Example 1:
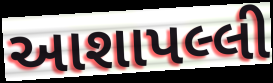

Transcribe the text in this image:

આશાપલ્લી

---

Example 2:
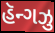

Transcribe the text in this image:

હૅન્ગઝુ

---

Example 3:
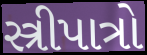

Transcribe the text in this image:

સ્ત્રીપાત્રો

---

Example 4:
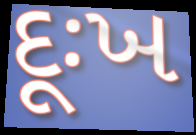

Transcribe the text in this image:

દૂઃખ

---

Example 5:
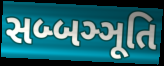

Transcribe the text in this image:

સબ્બઞ્ઞૂતિ